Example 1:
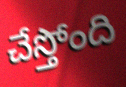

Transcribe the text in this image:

చేస్తోంది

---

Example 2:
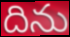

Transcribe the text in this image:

దిను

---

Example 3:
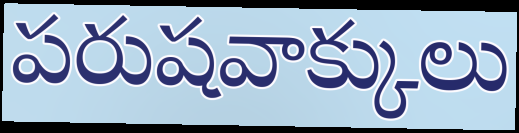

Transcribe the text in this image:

పరుషవాక్కులు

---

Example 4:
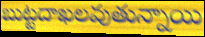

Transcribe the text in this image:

బుట్టదాఖలవుతున్నాయి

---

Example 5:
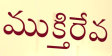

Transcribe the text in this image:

ముక్తిరేవ